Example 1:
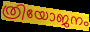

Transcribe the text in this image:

ത്രിയോജനം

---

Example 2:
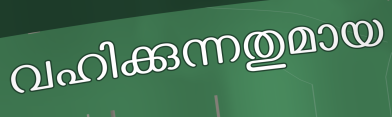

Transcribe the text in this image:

വഹിക്കുന്നതുമായ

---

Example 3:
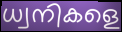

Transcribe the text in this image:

ധ്വനികളെ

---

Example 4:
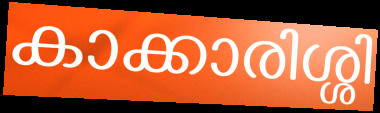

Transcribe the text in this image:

കാക്കാരിശ്ശി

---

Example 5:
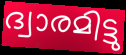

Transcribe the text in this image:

ദ്വാരമിട്ടു